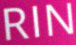
RIN